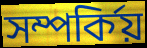
সম্পৰ্কিয়